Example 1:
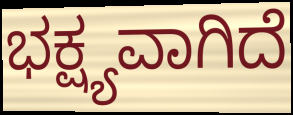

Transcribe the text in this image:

ಭಕ್ಷ್ಯವಾಗಿದೆ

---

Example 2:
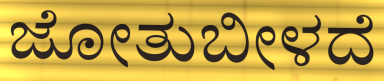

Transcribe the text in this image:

ಜೋತುಬೀಳದೆ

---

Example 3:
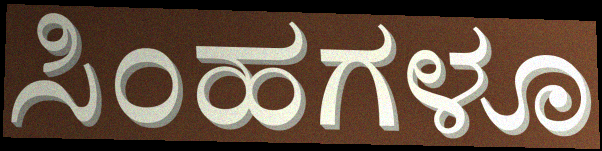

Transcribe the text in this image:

ಸಿಂಹಗಳೂ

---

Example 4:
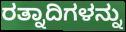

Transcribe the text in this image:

ರತ್ನಾದಿಗಳನ್ನು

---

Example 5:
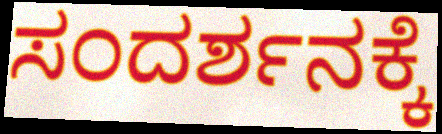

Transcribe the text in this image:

ಸಂದರ್ಶನಕ್ಕೆ